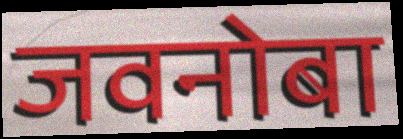
जवनोबा